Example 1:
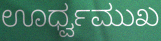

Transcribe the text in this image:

ಊರ್ಧ್ವಮುಖ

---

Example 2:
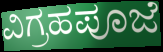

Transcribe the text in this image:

ವಿಗ್ರಹಪೂಜೆ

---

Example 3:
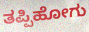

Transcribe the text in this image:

ತಪ್ಪಿಹೋಗು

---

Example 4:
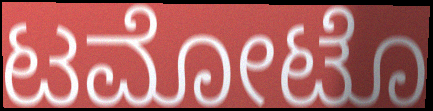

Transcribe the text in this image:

ಟಮೋಟೊ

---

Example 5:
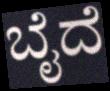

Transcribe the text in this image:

ಬೈದೆ